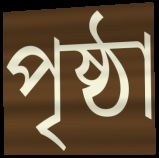
পৃষ্ঠা